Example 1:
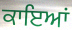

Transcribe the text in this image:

ਕਾਇਆਂ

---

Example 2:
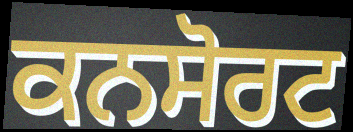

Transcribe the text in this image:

ਕਨਸੋਰਟ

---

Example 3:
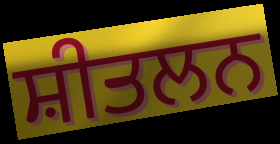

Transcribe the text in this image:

ਸ਼ੀਤਲਨ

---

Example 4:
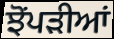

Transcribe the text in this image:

ਝੋਂਪੜੀਆਂ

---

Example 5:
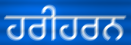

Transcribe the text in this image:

ਹਰੀਹਰਨ